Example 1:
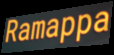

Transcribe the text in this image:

Ramappa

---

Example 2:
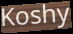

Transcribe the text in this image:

Koshy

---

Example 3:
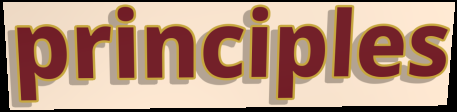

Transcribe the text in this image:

principles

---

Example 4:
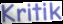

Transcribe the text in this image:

Kritik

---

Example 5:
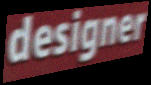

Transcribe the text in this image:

designer